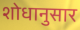
शोधानुसार